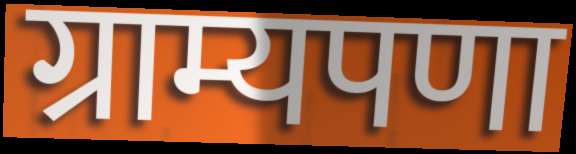
ग्राम्यपणा